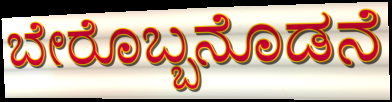
ಬೇರೊಬ್ಬನೊಡನೆ